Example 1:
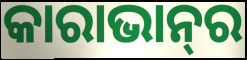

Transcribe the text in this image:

କାରାଭାନ୍‍ର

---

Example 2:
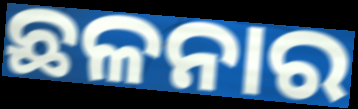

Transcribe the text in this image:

ଛଳନାର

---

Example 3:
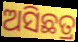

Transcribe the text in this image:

ଅସିଛତ୍ର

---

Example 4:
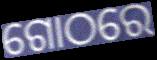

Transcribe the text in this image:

ଗୋଠରେ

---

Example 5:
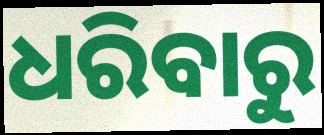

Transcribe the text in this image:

ଧରିବାରୁ